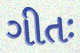
ગીતઃ